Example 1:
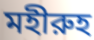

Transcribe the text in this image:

মহীরুহ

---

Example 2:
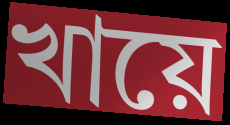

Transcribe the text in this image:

খায়ে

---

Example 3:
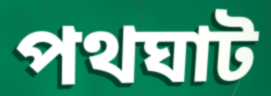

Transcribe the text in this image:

পথঘাট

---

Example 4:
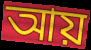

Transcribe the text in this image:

আয়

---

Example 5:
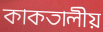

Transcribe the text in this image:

কাকতালীয়